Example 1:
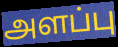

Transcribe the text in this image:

அளப்பு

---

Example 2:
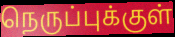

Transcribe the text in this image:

நெருப்புக்குள்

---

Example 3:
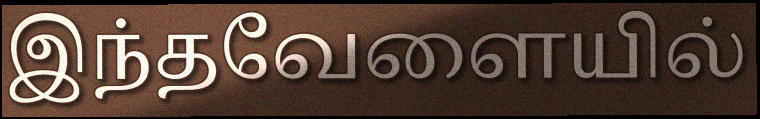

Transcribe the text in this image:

இந்தவேளையில்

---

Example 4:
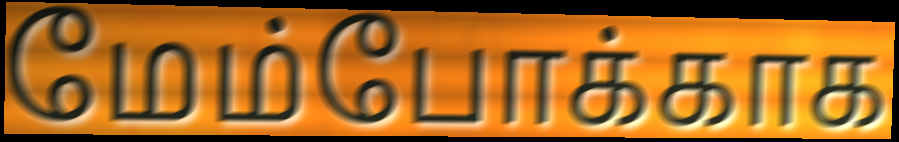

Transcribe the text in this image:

மேம்போக்காக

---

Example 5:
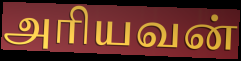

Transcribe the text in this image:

அரியவன்